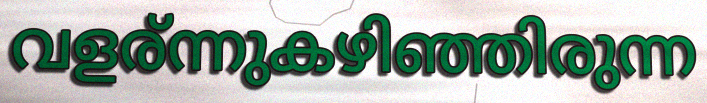
വളര്ന്നുകഴിഞ്ഞിരുന്ന